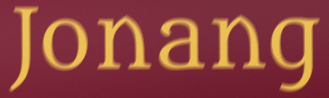
Jonang